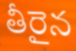
తీరైన